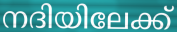
നദിയിലേക്ക്